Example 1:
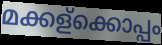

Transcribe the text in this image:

മക്കള്ക്കൊപ്പം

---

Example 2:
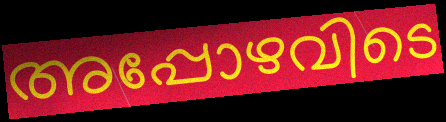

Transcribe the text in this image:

അപ്പോഴവിടെ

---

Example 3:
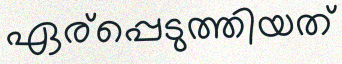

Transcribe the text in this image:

ഏര്പ്പെടുത്തിയത്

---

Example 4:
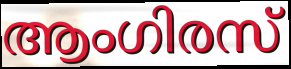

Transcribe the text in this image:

ആംഗിരസ്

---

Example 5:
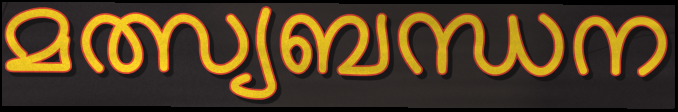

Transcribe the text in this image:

മത്സ്യബന്ധന